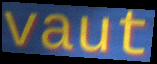
vaut